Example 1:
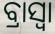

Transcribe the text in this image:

ବ୍ରାସ୍ବା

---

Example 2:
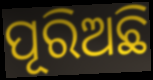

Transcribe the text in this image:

ପୂରିଅଛି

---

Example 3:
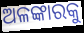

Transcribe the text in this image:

ଅଳଙ୍କାରକୁ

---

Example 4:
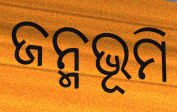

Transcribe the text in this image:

ଜନ୍ମଭୂମି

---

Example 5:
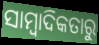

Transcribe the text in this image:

ସାମ୍ବାଦିକତାରୁ